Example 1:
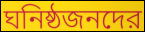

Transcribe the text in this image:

ঘনিষ্ঠজনদের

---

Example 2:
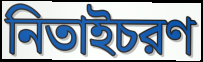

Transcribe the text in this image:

নিতাইচরণ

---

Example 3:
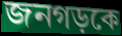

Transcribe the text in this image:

জনগড়কে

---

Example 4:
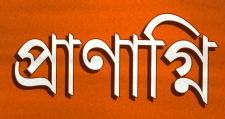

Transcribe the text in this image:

প্রাণাগ্নি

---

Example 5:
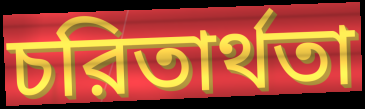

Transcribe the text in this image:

চরিতার্থতা